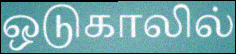
ஒடுகாலில்